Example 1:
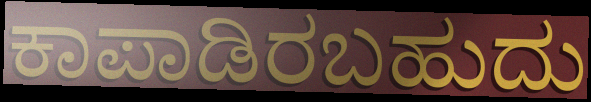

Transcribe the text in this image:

ಕಾಪಾಡಿರಬಹುದು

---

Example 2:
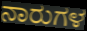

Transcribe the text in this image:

ನಾರುಗಳ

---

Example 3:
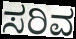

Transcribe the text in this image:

ಸರಿವ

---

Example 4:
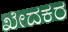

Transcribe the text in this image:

ಖೇದಕರ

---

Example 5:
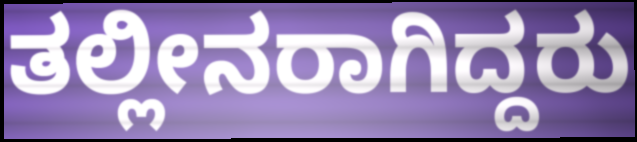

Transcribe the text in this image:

ತಲ್ಲೀನರಾಗಿದ್ದರು